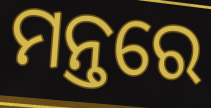
ମନ୍ତରେ